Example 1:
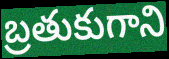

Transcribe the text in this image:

బ్రతుకుగాని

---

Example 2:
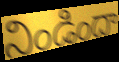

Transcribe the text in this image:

నిండిందా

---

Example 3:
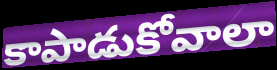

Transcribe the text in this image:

కాపాడుకోవాలా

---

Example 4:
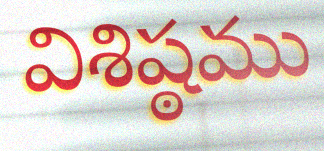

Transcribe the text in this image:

విశిష్ఠము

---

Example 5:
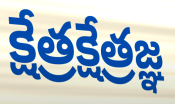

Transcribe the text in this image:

క్షేత్రక్షేత్రజ్ఞ